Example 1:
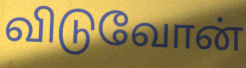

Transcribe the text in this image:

விடுவோன்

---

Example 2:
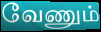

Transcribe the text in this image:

வேணும்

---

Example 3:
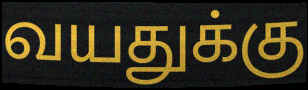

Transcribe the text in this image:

வயதுக்கு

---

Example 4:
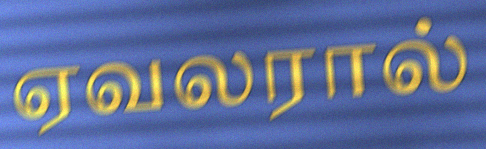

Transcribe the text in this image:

ஏவலரால்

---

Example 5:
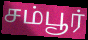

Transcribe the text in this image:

சம்பூர்